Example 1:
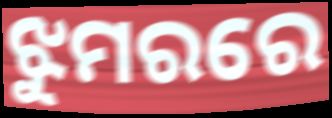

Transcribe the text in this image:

ଝୁମରରେ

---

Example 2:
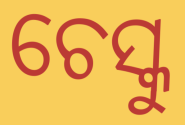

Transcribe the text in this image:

ଚେସ୍କୁ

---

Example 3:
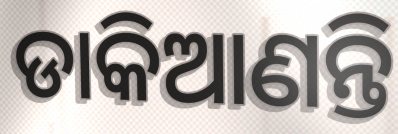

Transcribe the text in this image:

ଡାକିଆଣନ୍ତି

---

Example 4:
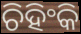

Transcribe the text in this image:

ଚିହିଂକି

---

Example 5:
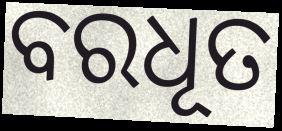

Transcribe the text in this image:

ବରଧୂତ